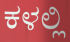
ಕಳಲ್ಲಿ